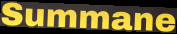
Summane